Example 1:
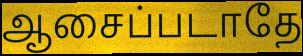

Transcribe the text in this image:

ஆசைப்படாதே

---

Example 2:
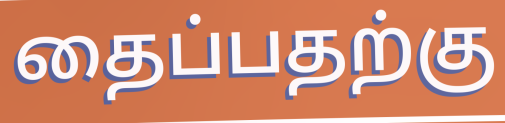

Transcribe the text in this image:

தைப்பதற்கு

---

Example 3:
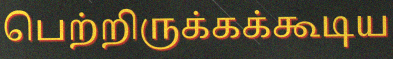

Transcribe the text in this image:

பெற்றிருக்கக்கூடிய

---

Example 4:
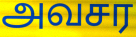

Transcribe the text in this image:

அவசர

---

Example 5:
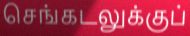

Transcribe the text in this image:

செங்கடலுக்குப்